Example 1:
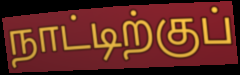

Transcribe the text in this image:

நாட்டிற்குப்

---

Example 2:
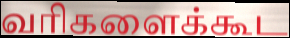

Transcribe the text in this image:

வரிகளைக்கூட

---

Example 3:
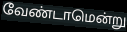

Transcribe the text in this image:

வேண்டாமென்று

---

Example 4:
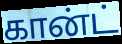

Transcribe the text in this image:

கான்ட்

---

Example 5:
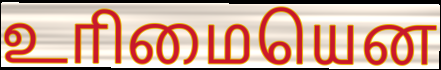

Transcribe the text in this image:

உரிமையென